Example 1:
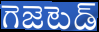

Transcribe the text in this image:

గెజెటెడ్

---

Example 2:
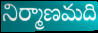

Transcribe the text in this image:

నిర్మాణమది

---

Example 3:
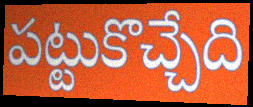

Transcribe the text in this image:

పట్టుకొచ్చేది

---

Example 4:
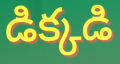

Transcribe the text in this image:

డిక్కడి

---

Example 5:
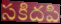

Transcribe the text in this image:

సకిదపి